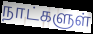
நாட்களுள்